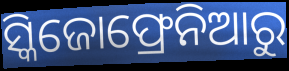
ସ୍କିଜୋଫ୍ରେନିଆରୁ